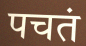
पचतं